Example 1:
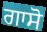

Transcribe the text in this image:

ਗਾਸੋ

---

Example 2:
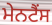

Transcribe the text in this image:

ਮੇਨਟੈਂਸ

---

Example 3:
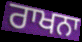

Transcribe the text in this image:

ਰਾਖਨਾ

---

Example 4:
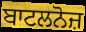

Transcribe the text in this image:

ਬਾਟਲਨੋਜ਼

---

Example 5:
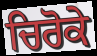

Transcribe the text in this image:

ਚਿਰੋਕੇ